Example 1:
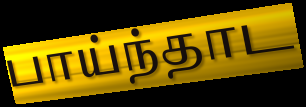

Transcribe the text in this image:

பாய்ந்தாட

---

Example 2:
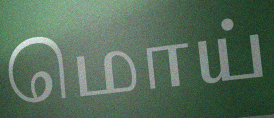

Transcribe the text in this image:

மொய்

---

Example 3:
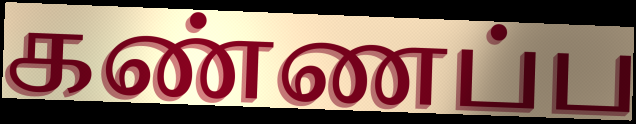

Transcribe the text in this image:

கண்ணப்ப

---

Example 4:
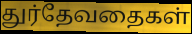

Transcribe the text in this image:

துர்தேவதைகள்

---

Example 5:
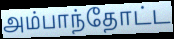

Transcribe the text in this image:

அம்பாந்தோட்ட